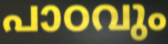
പാഠവും